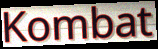
Kombat